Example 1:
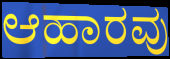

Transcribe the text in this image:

ಆಹಾರವು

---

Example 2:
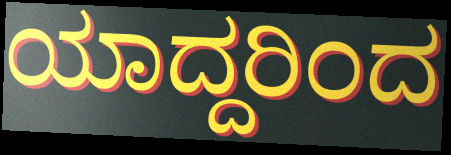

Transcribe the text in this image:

ಯಾದ್ದರಿಂದ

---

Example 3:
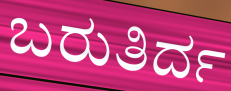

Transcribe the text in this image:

ಬರುತಿರ್ದ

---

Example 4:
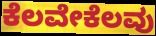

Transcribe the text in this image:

ಕೆಲವೇಕೆಲವು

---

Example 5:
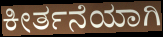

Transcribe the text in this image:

ಕೀರ್ತನೆಯಾಗಿ